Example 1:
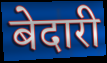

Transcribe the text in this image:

बेदारी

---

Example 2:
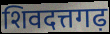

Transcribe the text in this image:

शिवदत्तगढ़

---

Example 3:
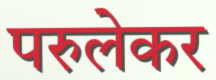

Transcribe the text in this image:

परुलेकर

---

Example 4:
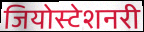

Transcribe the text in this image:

जियोस्टेशनरी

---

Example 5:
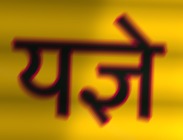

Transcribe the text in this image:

यज्ञे